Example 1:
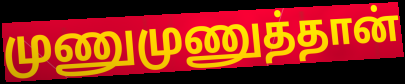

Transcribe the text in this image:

முணுமுணுத்தான்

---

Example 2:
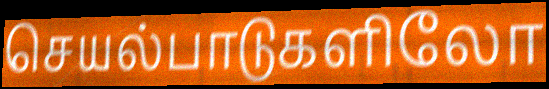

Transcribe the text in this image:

செயல்பாடுகளிலோ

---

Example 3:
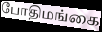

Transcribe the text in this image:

போதிமங்கை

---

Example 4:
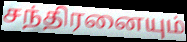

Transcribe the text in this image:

சந்திரனையும்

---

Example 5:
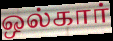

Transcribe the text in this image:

ஒல்கார்